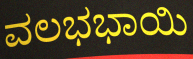
ವಲಭಭಾಯಿ